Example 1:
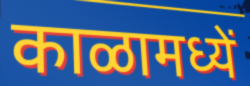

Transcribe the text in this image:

काळामध्यें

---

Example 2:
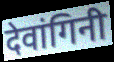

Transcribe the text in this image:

देवांगिनी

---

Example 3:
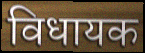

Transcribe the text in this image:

विधायक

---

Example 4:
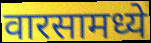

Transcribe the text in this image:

वारसामध्ये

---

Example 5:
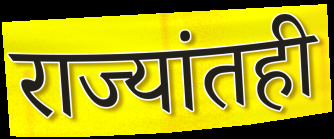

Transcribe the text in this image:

राज्यांतही